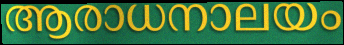
ആരാധനാലയം